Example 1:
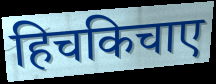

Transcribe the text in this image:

हिचकिचाए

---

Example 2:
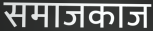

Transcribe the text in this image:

समाजकाज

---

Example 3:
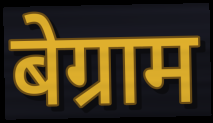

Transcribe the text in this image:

बेग्राम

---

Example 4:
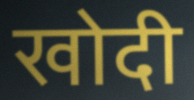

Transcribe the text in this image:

खोदी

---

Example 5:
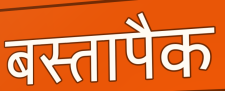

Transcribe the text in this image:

बस्तापैक